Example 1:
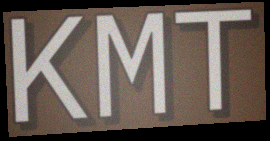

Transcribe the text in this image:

KMT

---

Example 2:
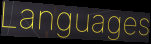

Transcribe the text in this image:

Languages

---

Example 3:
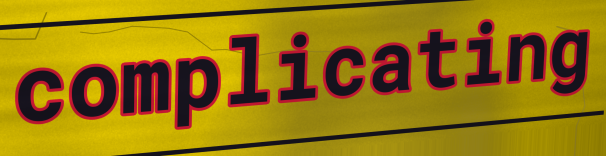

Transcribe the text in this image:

complicating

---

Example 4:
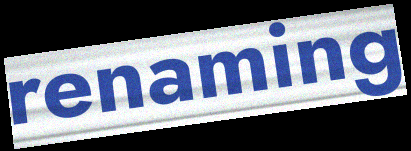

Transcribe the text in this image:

renaming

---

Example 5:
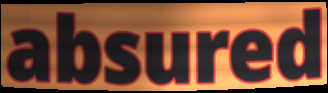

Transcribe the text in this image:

absured